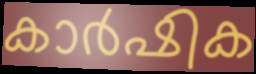
കാർഷിക